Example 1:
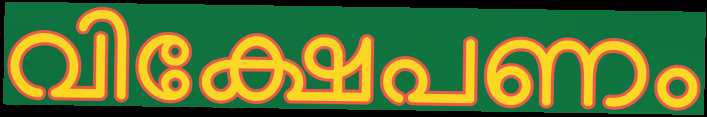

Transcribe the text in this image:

വിക്ഷേപണം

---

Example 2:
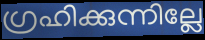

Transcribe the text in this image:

ഗ്രഹിക്കുന്നില്ലേ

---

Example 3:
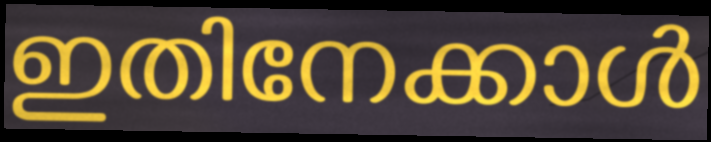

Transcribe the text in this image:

ഇതിനേക്കാൾ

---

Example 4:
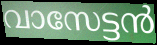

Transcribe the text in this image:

വാസേട്ടൻ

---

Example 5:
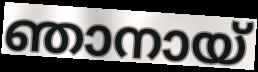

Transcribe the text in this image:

ഞാനായ്